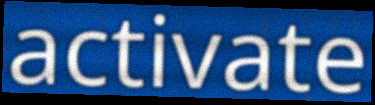
activate